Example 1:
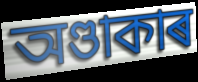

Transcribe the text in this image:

অণ্ডাকাৰ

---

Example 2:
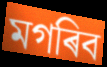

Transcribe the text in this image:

মগৰিব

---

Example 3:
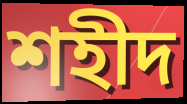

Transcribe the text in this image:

শহীদ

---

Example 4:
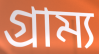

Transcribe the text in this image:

গ্ৰাম্য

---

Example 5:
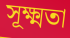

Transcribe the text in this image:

সূক্ষ্মতা